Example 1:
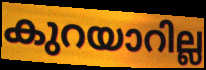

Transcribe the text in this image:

കുറയാറില്ല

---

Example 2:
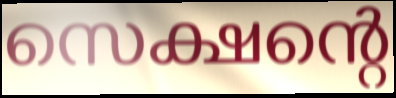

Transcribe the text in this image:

സെക്ഷന്റെ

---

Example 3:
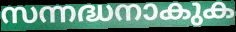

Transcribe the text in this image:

സന്നദ്ധനാകുക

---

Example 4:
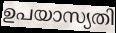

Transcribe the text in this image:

ഉപയാസ്യതി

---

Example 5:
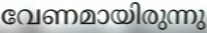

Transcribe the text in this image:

വേണമായിരുന്നു